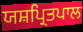
ਯਸ਼ਪ੍ਰਿਤਪਾਲ